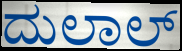
ದುಲಾಲ್